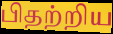
பிதற்றிய